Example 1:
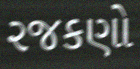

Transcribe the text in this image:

રજકણો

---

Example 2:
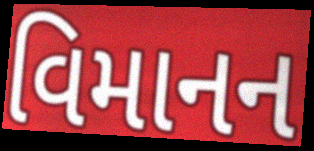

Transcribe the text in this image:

વિમાનન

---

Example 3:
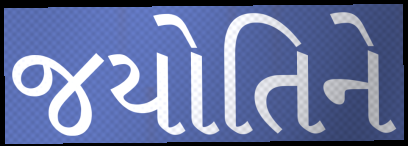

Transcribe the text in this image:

જયોતિને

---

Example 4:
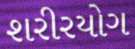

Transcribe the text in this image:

શરીરયોગ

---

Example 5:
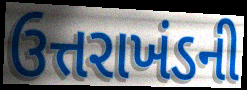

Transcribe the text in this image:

ઉત્તરાખંડની